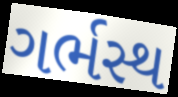
ગર્ભસ્થ